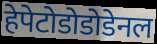
हेपेटोडोडोडेनल